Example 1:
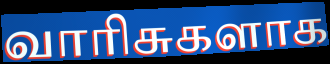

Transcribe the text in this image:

வாரிசுகளாக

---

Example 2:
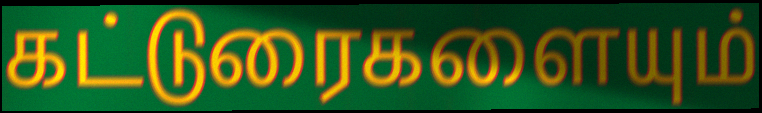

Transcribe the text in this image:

கட்டுரைகளையும்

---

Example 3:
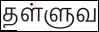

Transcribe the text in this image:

தள்ளுவ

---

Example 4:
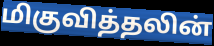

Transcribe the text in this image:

மிகுவித்தலின்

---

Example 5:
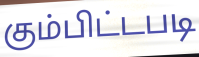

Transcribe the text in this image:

கும்பிட்டபடி